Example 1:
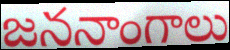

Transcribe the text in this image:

జననాంగాలు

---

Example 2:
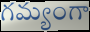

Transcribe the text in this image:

గమ్యంగా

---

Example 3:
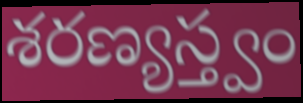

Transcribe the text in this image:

శరణ్యస్త్వం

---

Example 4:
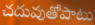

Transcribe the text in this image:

చదువుతోపాటు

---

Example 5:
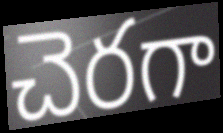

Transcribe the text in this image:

చెరగా